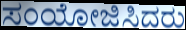
ಸಂಯೋಜಿಸಿದರು